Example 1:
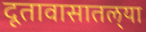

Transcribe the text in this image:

दूतावासातल्या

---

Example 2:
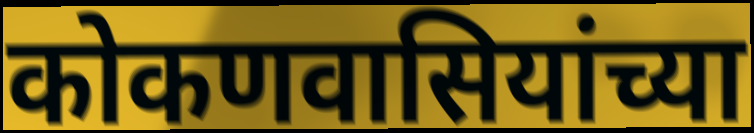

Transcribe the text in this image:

कोकणवासियांच्या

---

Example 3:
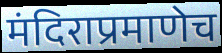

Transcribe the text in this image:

मंदिराप्रमाणेच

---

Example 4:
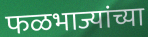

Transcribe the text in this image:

फळभाज्यांच्या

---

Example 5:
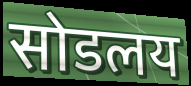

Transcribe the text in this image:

सोडलय